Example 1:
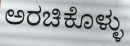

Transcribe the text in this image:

ಅರಚಿಕೊಳ್ಳು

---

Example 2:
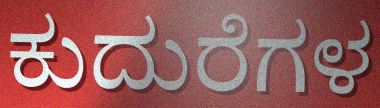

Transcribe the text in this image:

ಕುದುರೆಗಳ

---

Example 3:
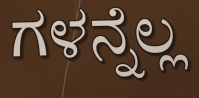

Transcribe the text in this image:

ಗಳನ್ನೆಲ್ಲ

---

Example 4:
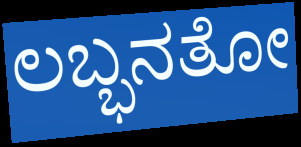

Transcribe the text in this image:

ಲಬ್ಭನತೋ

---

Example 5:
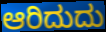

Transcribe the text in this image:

ಆರಿದುದು